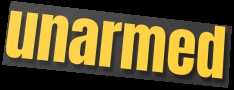
unarmed